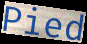
Pied